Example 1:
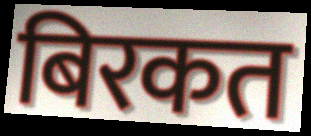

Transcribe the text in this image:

बिरकत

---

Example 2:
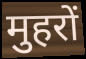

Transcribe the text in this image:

मुहरों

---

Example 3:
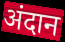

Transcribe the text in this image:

अंदान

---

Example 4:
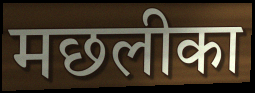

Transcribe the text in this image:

मछलीका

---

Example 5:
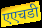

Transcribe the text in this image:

एएचडी